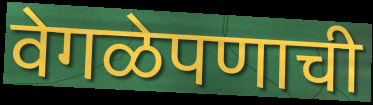
वेगळेपणाची